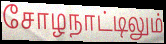
சோழநாட்டிலும்